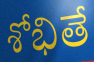
శోభితే